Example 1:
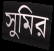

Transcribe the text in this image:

সুমির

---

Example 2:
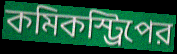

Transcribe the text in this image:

কমিকস্ট্রিপের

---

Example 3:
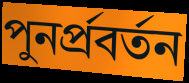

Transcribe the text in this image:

পুনর্প্রবর্তন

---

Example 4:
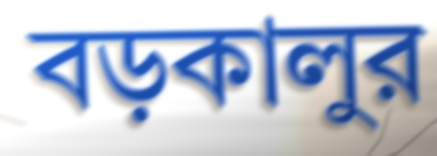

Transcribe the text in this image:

বড়কালুর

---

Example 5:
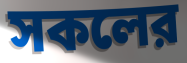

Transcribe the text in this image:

সকলের